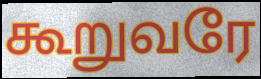
கூறுவரே